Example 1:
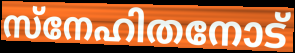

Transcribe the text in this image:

സ്നേഹിതനോട്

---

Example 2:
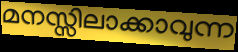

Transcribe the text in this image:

മനസ്സിലാക്കാവുന്ന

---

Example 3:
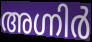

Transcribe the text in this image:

അഗ്നിർ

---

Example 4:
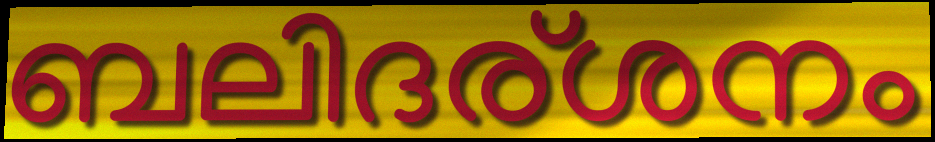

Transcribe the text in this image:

ബലിദര്ശനം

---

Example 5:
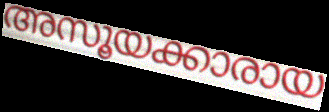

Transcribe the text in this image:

അസൂയക്കാരായ